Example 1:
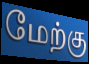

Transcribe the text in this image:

மேற்கு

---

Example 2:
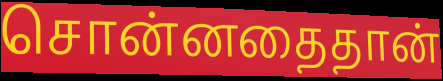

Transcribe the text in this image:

சொன்னதைதான்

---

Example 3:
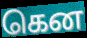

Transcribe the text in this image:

கென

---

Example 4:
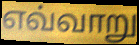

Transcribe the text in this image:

எவ்வாறு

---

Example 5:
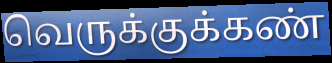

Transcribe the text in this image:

வெருக்குக்கண்